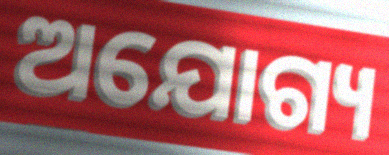
ଅଯୋଗ୍ୟ